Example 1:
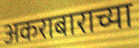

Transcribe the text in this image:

अकराबाराच्या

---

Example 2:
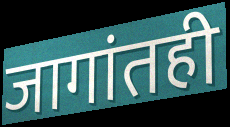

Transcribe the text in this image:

जागांतही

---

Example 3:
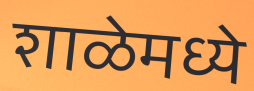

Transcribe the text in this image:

शाळेमध्ये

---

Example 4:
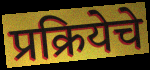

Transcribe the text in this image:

प्रक्रियेचे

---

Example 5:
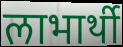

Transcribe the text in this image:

लाभार्थी